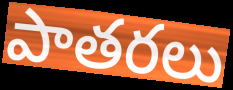
పాతరలు